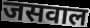
जसवाल